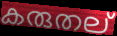
കരുതല്